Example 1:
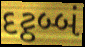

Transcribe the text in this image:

દટ્ઠબ્બં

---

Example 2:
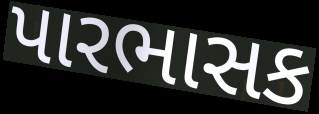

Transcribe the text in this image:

પારભાસક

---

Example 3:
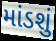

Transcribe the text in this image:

માંડશું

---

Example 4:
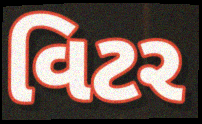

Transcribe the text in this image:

વિટર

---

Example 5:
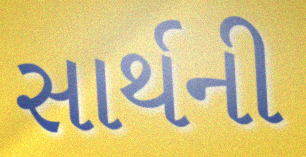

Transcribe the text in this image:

સાર્થની